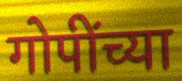
गोपींच्या